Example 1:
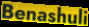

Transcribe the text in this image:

Benashuli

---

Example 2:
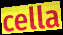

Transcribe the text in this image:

cella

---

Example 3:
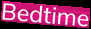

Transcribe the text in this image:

Bedtime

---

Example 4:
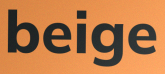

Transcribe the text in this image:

beige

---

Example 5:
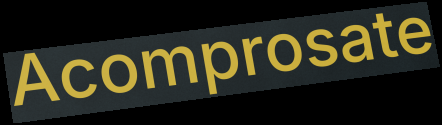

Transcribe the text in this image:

Acomprosate